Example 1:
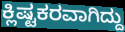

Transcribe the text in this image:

ಕ್ಲಿಷ್ಟಕರವಾಗಿದ್ದು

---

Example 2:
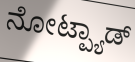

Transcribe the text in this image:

ನೋಟ್ಪ್ಯಾಡ್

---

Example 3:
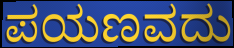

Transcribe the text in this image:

ಪಯಣವದು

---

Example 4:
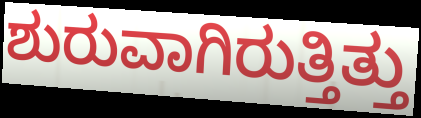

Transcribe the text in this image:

ಶುರುವಾಗಿರುತ್ತಿತ್ತು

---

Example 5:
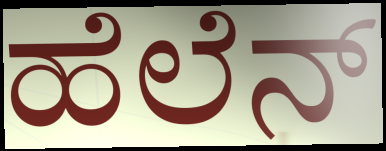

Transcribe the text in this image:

ಹೆಲೆನ್